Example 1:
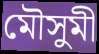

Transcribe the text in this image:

মৌসুমী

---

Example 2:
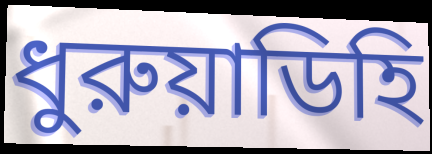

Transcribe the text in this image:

ধুরুয়াডিহি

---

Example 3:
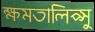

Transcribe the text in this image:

ক্ষমতালিপ্সু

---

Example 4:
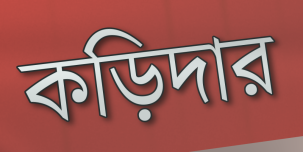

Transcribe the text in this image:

কড়িদার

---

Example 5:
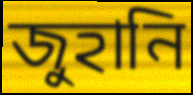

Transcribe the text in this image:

জুহানি